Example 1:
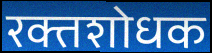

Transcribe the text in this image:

रक्तशोधक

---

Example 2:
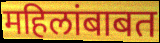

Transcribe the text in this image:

महिलांबाबत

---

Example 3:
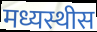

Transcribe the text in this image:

मध्यस्थीस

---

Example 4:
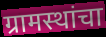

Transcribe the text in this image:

ग्रामस्थांचा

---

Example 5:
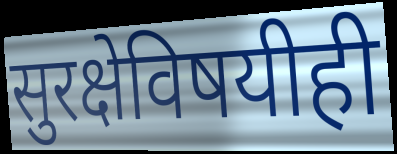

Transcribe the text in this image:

सुरक्षेविषयीही